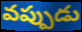
వప్పుడు